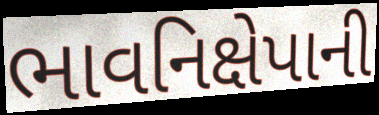
ભાવનિક્ષેપાની